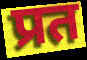
प्रत